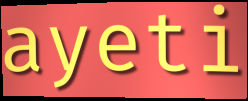
ayeti